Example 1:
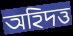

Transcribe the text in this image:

অহিদত্ত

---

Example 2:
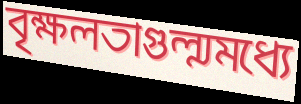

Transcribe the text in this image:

বৃক্ষলতাগুল্মমধ্যে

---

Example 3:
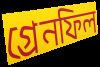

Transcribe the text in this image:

গ্রেনফিল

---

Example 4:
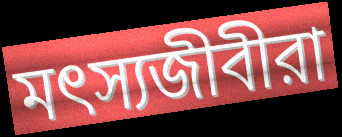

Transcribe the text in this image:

মৎস্যজীবীরা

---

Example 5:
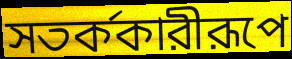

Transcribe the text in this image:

সতর্ককারীরূপে